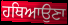
ਹਥਿਆਉਣਾ